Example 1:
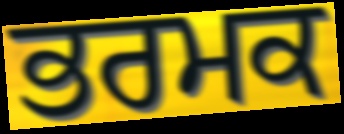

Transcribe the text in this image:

ਭਰਮਕ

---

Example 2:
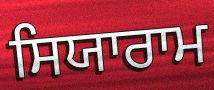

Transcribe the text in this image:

ਸਿਯਾਰਾਮ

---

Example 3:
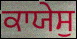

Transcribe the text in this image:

ਕਾਯੇਸੁ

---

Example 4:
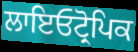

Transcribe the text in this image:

ਲਾਇਓਟ੍ਰੋਪਿਕ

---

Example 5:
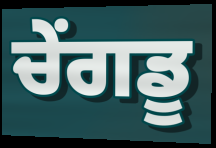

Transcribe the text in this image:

ਚੇਂਗਡੂ